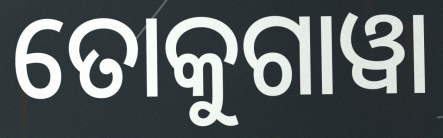
ତୋକୁଗାୱା